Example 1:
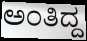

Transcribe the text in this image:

ಅಂತಿದ್ದ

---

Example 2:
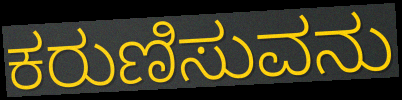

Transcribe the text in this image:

ಕರುಣಿಸುವನು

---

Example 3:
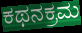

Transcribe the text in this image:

ಕಥನಕ್ರಮ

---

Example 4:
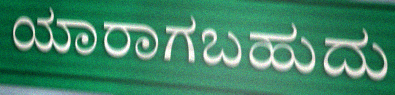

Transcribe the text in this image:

ಯಾರಾಗಬಹುದು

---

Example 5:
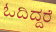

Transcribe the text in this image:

ಓದಿದ್ದರೆ